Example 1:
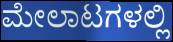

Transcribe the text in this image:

ಮೇಲಾಟಗಳಲ್ಲಿ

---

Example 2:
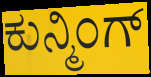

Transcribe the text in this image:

ಕುನ್ಮಿಂಗ್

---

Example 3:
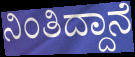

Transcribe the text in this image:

ನಿಂತಿದ್ದಾನೆ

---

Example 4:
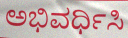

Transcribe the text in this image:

ಅಭಿವರ್ಧಿಸಿ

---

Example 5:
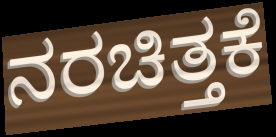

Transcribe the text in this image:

ನರಚಿತ್ತಕೆ